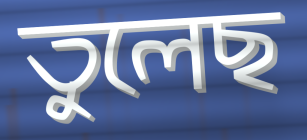
তুলেছ